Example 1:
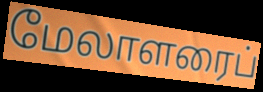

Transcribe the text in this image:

மேலாளரைப்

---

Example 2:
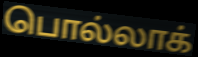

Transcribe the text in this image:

பொல்லாக்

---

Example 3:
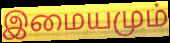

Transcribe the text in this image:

இமையமும்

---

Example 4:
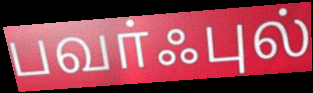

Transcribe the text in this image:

பவர்ஃபுல்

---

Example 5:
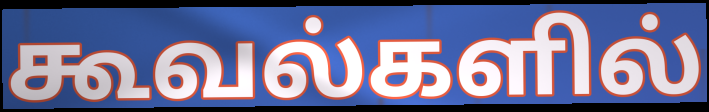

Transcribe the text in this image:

கூவல்களில்